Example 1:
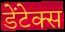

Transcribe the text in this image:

डेंटेक्स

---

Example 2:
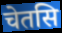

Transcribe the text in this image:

चेतसि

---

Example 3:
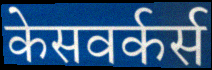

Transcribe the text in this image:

केसवर्कर्स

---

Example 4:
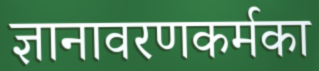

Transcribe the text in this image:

ज्ञानावरणकर्मका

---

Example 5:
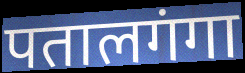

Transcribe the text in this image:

पतालगंगा